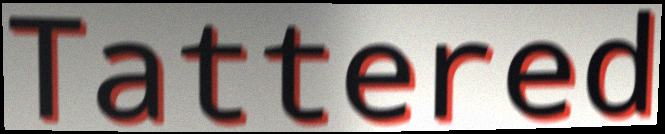
Tattered